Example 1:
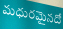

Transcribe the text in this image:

మధురమైనదో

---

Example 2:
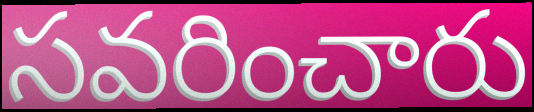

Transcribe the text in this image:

సవరించారు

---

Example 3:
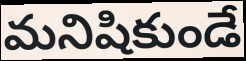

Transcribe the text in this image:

మనిషికుండే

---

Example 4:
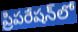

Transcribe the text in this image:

ప్రిపరేషన్‌లో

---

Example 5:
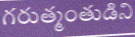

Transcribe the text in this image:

గరుత్మంతుడిని